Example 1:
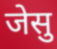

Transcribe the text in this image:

जेसु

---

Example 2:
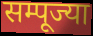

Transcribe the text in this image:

सम्पूज्या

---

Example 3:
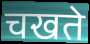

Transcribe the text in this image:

चखते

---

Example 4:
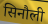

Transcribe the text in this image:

सिनौली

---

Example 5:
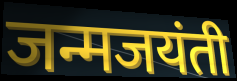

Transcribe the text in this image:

जन्मजयंती